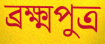
ব্ৰক্ষ্মপুত্ৰ